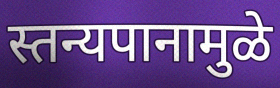
स्तन्यपानामुळे